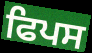
ਫਿਪਸ